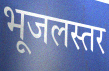
भूजलस्तर